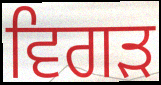
ਵਿਗੜ